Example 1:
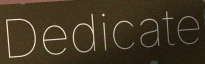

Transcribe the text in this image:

Dedicate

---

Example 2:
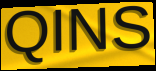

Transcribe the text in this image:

QINS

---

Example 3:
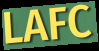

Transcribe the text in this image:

LAFC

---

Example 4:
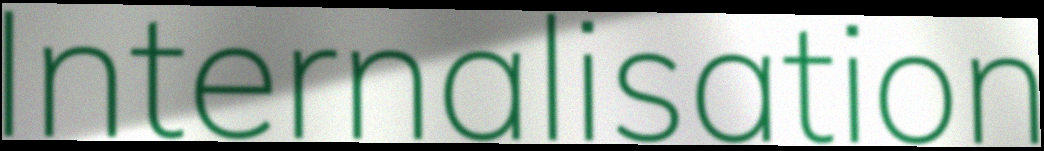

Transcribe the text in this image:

Internalisation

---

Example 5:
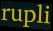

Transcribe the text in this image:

rupli